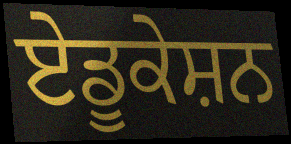
ਏਡੂਕੇਸ਼ਨ